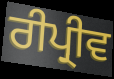
ਰੀਪ੍ਰੀਵ